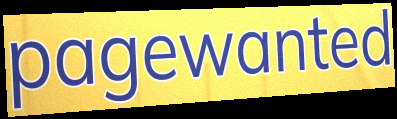
pagewanted